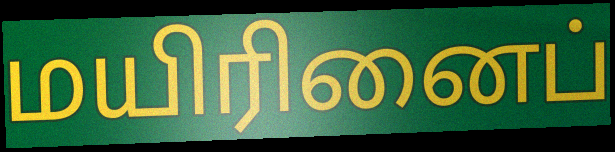
மயிரினைப்